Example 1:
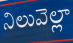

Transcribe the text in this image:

నిలువెల్లా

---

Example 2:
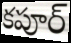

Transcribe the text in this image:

కపూర్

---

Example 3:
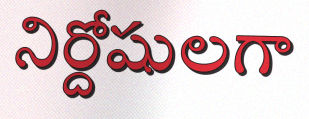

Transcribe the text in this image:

నిర్దోషులగా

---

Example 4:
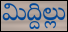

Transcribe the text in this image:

మిద్దిల్లు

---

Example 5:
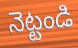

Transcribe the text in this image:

నెట్టండి